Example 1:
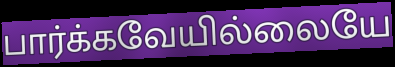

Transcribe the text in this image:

பார்க்கவேயில்லையே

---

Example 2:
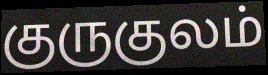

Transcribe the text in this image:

குருகுலம்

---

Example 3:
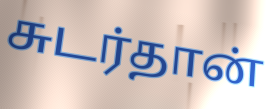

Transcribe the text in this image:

சுடர்தான்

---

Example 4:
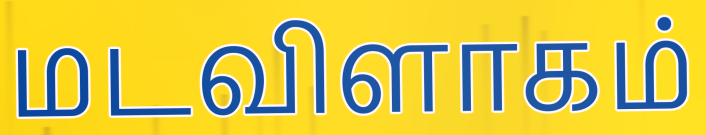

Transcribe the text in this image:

மடவிளாகம்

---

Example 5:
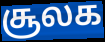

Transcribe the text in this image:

சூலக